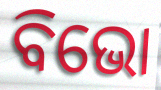
ବିଭୋ